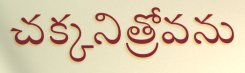
చక్కనిత్రోవను